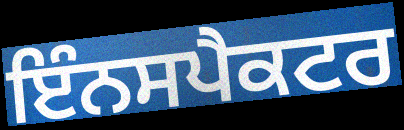
ਇੰਨਸਪੈਕਟਰ